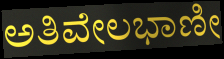
ಅತಿವೇಲಭಾಣೀ